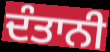
ਦੰਤਾਨੀ